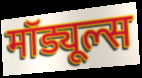
मॉड्यूल्स